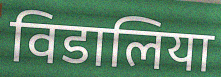
विडालिया